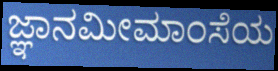
ಜ್ಞಾನಮೀಮಾಂಸೆಯ